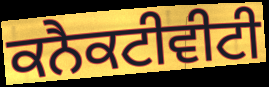
ਕਨੈਕਟੀਵੀਟੀ